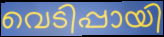
വെടിപ്പായി